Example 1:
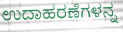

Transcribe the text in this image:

ಉದಾಹರಣೆಗಳನ್ನ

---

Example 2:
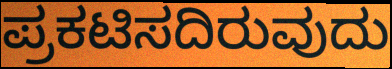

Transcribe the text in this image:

ಪ್ರಕಟಿಸದಿರುವುದು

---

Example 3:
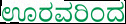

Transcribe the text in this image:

ಊರವರಿಂದ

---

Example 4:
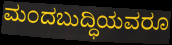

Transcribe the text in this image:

ಮಂದಬುದ್ಧಿಯವರೂ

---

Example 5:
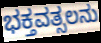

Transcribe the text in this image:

ಭಕ್ತವತ್ಸಲನು